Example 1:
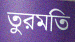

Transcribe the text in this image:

তুরমতি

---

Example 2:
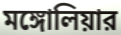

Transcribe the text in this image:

মঙ্গোলিয়ার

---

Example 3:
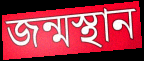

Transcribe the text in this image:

জন্মস্থান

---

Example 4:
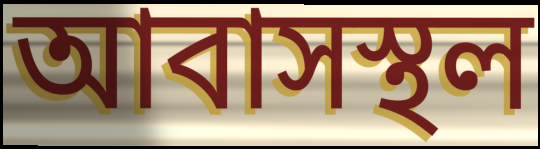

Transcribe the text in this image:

আবাসস্থল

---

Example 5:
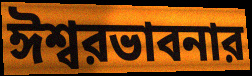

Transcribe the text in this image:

ঈশ্বরভাবনার